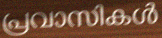
പ്രവാസികൾ